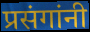
प्रसंगांनी